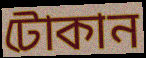
টোকান